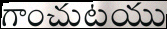
గాంచుటయు